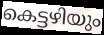
കെട്ടഴിയും